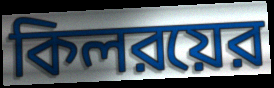
কিলরয়ের